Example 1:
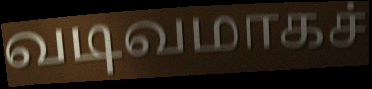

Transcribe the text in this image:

வடிவமாகச்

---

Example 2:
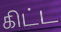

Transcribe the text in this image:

கிட்ட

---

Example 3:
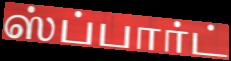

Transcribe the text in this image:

ஸ்ப்பார்ட்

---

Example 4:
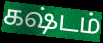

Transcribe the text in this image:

கஷ்டம்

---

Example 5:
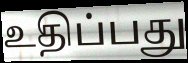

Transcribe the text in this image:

உதிப்பது